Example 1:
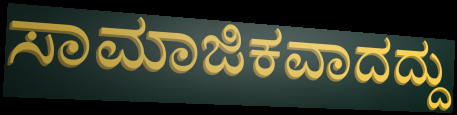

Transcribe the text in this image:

ಸಾಮಾಜಿಕವಾದದ್ದು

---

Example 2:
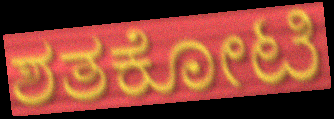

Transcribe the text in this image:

ಶತಕೋಟಿ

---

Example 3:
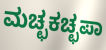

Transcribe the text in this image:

ಮಚ್ಛಕಚ್ಛಪಾ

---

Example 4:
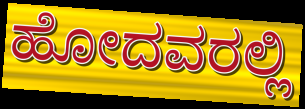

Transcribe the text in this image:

ಹೋದವರಲ್ಲಿ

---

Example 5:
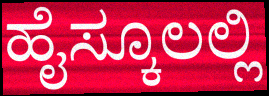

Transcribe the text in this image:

ಹೈಸ್ಕೂಲಲ್ಲಿ